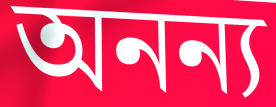
অনন্য